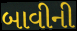
બાવીની